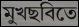
মুখছবিতে